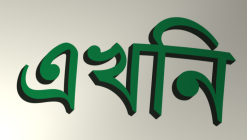
এখনি